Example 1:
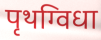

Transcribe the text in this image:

पृथग्विधा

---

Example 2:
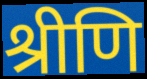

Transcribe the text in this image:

श्रीणि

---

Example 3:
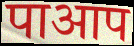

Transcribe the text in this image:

पाआप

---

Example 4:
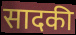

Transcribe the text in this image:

सादकी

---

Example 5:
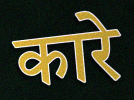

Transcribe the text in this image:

कारे